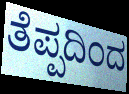
ತೆಪ್ಪದಿಂದ